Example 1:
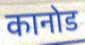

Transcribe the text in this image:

कानोड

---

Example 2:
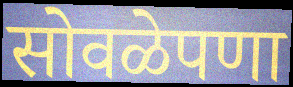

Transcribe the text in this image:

सोवळेपणा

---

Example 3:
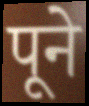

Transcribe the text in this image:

पूने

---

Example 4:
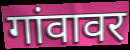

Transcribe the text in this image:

गांवावर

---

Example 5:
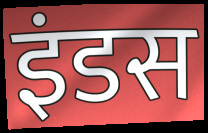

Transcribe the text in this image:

इंडस